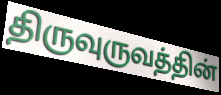
திருவுருவத்தின்